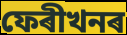
ফেৰীখনৰ